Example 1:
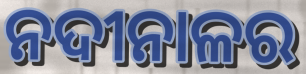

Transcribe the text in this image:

ନଦୀନାଳର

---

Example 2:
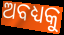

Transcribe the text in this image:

ଅବଧ୍ୟକୁ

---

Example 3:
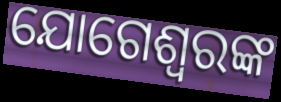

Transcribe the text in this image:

ଯୋଗେଶ୍ୱରଙ୍କ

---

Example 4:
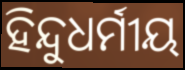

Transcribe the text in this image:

ହିନ୍ଦୁଧର୍ମୀୟ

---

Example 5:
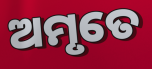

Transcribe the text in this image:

ଅମୃତେ